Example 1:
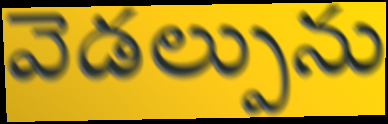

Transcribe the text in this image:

వెడల్పును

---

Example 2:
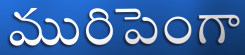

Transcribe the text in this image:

మురిపెంగా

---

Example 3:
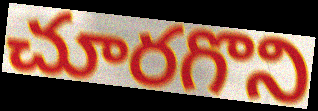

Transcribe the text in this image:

చూరగొని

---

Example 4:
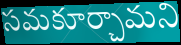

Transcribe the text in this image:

సమకూర్చామని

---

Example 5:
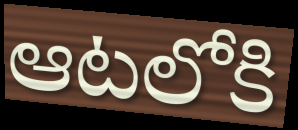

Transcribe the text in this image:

ఆటలోకి